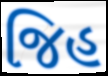
જિહ